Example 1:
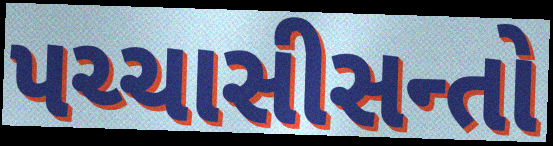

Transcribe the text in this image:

પચ્ચાસીસન્તો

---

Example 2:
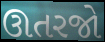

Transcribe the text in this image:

ઊતરજો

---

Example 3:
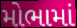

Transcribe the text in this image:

મોભામાં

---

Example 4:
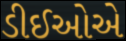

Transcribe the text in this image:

ડીઈઓએ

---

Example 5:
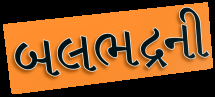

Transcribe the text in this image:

બલભદ્રની